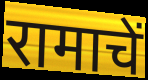
रामाचें